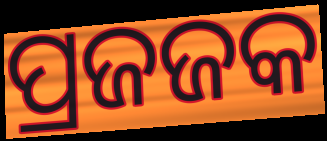
ପ୍ରଜଜକ